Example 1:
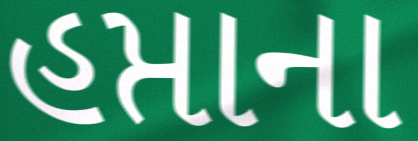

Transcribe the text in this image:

હપ્તાના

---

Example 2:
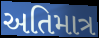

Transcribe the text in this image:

અતિમાત્ર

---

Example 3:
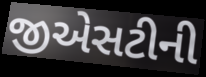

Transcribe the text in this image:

જીએસટીની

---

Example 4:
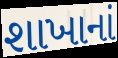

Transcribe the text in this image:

શાખાનાં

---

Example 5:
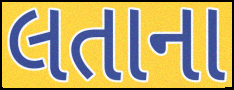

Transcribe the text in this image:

લતાના